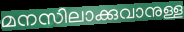
മനസിലാക്കുവാനുള്ള